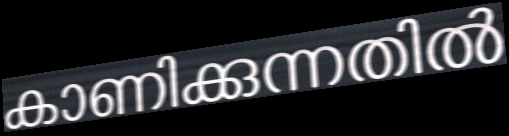
കാണിക്കുന്നതിൽ